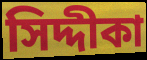
সিদ্দীকা